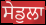
ਸੇਡੁਲਾ